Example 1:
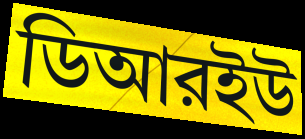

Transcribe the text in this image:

ডিআরইউ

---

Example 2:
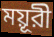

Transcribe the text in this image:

ময়ূরী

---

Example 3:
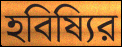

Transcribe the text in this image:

হবিষ্যির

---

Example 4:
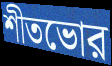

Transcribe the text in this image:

শীতভোর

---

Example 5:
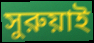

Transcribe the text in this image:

সুরুয়াই